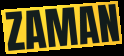
ZAMAN